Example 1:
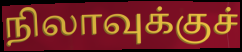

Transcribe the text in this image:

நிலாவுக்குச்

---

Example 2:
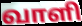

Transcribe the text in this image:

வாளி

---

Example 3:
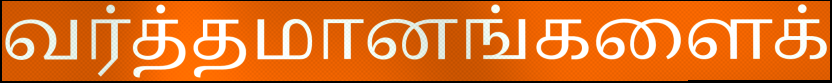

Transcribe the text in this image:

வர்த்தமானங்களைக்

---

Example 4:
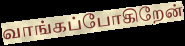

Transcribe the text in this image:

வாங்கப்போகிறேன்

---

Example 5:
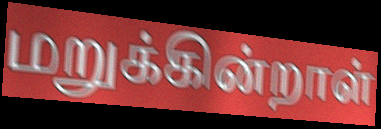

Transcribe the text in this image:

மறுக்கின்றாள்